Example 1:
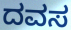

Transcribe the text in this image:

ದವಸ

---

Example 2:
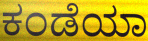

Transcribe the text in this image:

ಕಂಡೆಯಾ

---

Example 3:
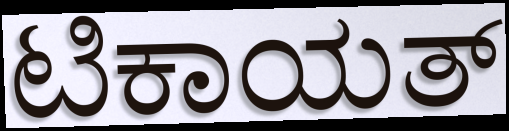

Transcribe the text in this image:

ಟಿಕಾಯತ್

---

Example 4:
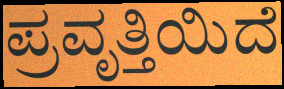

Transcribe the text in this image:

ಪ್ರವೃತ್ತಿಯಿದೆ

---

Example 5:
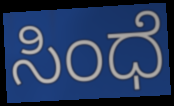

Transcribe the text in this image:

ಸಿಂಧೆ